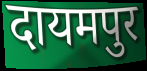
दायमपुर